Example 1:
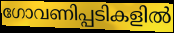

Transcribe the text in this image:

ഗോവണിപ്പടികളിൽ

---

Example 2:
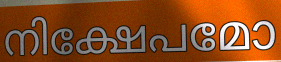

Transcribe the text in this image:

നിക്ഷേപമോ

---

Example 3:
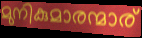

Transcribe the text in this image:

മുനികുമാരന്മാര്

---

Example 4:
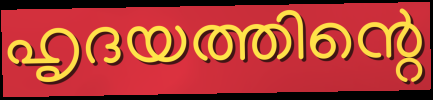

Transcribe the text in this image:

ഹൃദയത്തിന്റെ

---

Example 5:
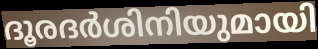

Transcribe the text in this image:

ദൂരദർശിനിയുമായി